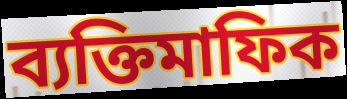
ব্যক্তিমাফিক